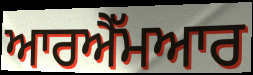
ਆਰਐੱਮਆਰ